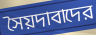
সৈয়দাবাদের